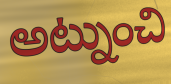
అట్నుంచి